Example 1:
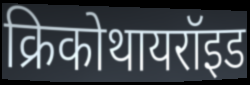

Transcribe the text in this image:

क्रिकोथायरॉइड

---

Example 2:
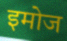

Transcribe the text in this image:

इमोज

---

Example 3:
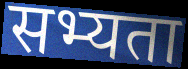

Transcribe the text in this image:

सभ्यता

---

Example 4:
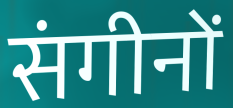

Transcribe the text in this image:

संगीनों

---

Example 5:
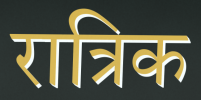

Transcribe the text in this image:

रात्रिक